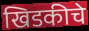
खिडकीचे